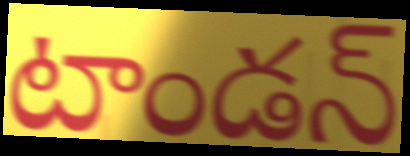
టాండన్